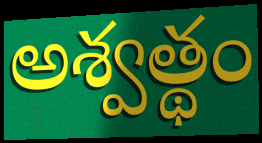
అశ్వత్థం